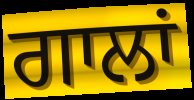
ਗਾਲਾਂ